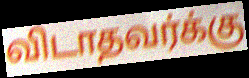
விடாதவர்க்கு